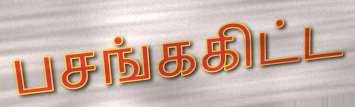
பசங்ககிட்ட